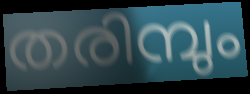
തരിമ്പും